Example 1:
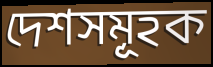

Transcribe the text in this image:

দেশসমূহক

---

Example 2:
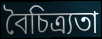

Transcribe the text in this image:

বৈচিত্ৰ্যতা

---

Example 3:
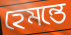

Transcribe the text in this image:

হেমন্তে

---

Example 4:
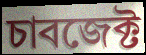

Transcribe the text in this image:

চাবজেক্ট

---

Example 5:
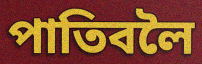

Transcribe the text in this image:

পাতিবলৈ